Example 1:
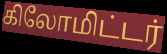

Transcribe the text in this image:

கிலோமிட்டர்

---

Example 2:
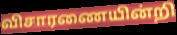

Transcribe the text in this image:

விசாரணையின்றி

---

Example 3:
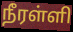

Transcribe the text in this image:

நீரள்ளி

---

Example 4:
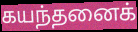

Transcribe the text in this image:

கயந்தனைக்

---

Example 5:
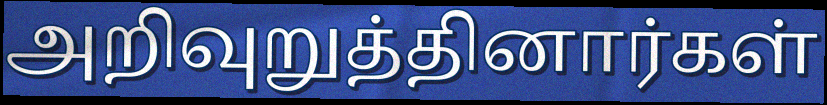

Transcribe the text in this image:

அறிவுறுத்தினார்கள்